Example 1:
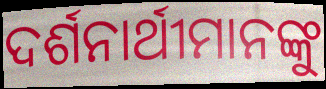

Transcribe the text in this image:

ଦର୍ଶନାର୍ଥୀମାନଙ୍କୁ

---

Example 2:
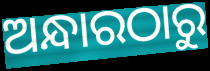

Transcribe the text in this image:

ଅନ୍ଧାରଠାରୁ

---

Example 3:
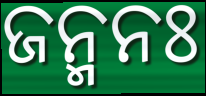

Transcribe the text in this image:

ଜନ୍ମନଃ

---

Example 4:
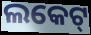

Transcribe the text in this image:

ଲକେଟ୍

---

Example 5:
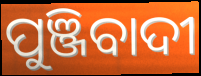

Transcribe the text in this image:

ପୁଞ୍ଜିବାଦୀ